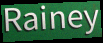
Rainey